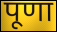
पूणा